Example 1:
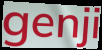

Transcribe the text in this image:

genji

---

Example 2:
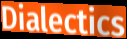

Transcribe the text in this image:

Dialectics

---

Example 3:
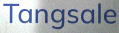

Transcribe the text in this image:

Tangsale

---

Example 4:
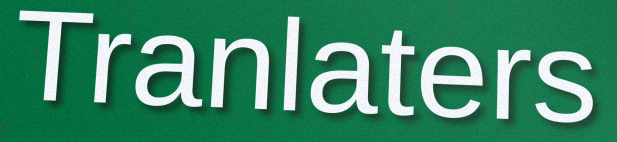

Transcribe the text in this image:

Tranlaters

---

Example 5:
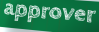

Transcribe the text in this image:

approver